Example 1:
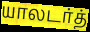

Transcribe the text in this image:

யாலடர்த்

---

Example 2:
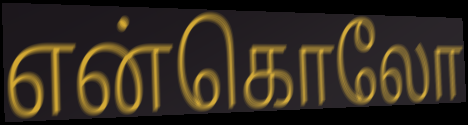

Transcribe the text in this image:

என்கொலோ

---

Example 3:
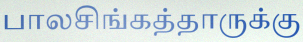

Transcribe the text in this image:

பாலசிங்கத்தாருக்கு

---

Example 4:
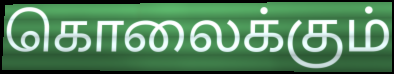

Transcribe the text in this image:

கொலைக்கும்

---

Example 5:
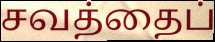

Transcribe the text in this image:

சவத்தைப்